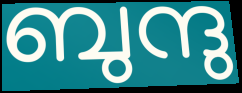
ബുന്ദു